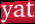
yat